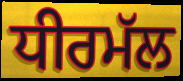
ਧੀਰਮੱਲ